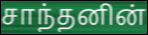
சாந்தனின்